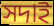
সদাই